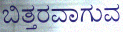
ಬಿತ್ತರವಾಗುವ